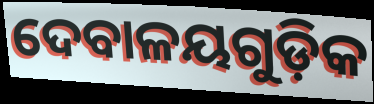
ଦେବାଳୟଗୁଡ଼ିକ